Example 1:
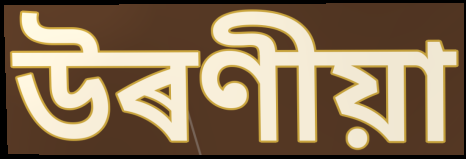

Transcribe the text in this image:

উৰণীয়া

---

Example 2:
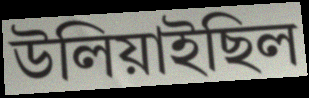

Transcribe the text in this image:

উলিয়াইছিল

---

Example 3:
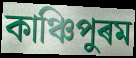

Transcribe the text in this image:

কাঞ্চিপুৰম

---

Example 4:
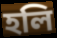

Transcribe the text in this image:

হলি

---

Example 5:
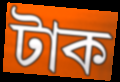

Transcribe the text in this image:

টাক